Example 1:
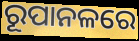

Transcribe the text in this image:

ରୂପାନଳରେ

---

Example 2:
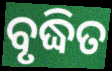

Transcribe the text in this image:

ବୃଦ୍ଧିତ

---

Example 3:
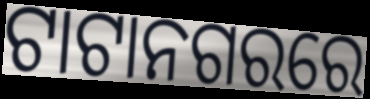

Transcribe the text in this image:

ଟାଟାନଗରରେ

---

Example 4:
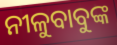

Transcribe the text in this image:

ନୀଳୁବାବୁଙ୍କ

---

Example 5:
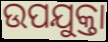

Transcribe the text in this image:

ଉପଯୁକ୍ତା